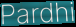
Pardhi